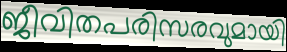
ജീവിതപരിസരവുമായി